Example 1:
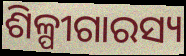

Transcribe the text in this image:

ଶିଳ୍ପୀଗାରସ୍ୟ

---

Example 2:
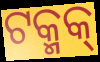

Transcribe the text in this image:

ଟକ୍ମକ୍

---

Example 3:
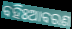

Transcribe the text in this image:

ବହିଃଆବରଣ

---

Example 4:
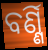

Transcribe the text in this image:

ବର୍ଣ୍ଣି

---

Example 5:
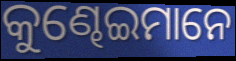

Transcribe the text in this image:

କୁଣ୍ଢେଇମାନେ